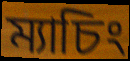
ম্যাচিং